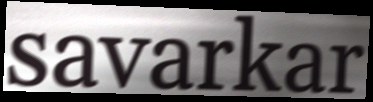
savarkar